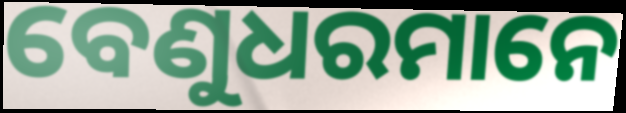
ବେଣୁଧରମାନେ